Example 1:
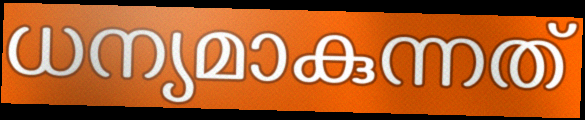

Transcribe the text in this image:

ധന്യമാകുന്നത്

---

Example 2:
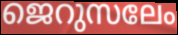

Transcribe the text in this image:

ജെറുസലേം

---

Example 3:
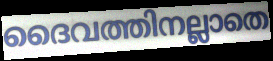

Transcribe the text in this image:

ദൈവത്തിനല്ലാതെ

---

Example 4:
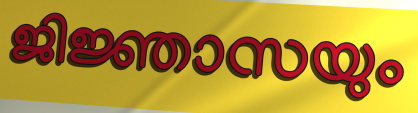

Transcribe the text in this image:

ജിജ്ഞാസയും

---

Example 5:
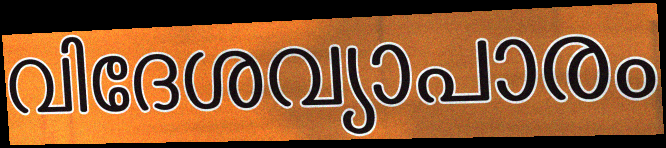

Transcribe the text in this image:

വിദേശവ്യാപാരം